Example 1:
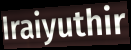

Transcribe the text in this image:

Iraiyuthir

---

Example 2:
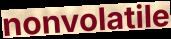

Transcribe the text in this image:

nonvolatile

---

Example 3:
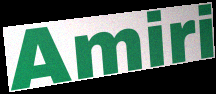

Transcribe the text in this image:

Amiri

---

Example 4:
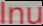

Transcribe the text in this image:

Inu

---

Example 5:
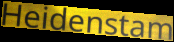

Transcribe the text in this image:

Heidenstam